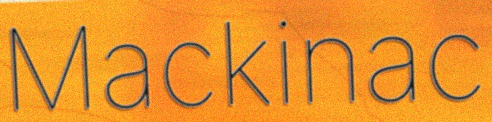
Mackinac